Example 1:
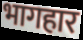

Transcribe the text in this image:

भागहार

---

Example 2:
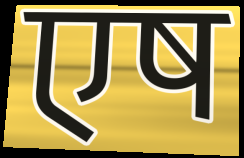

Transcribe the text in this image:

एष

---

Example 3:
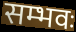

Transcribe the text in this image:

सम्भवः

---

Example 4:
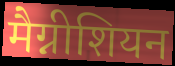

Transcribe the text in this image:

मैग्नीशियन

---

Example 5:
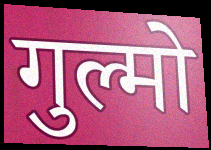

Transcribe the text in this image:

गुल्मो